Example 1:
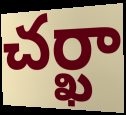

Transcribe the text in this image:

చర్ఖా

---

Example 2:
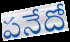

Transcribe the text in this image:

పనేదో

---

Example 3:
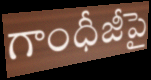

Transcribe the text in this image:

గాంధీజీపై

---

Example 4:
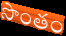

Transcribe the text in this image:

సొంతం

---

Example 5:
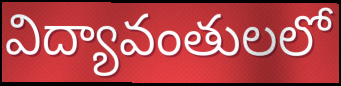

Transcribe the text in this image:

విద్యావంతులలో